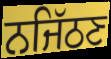
ਨਜਿੱਠਣ